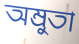
অম্রুতা